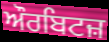
ਔਰਬਿਟਜ਼